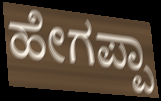
ಹೇಗಪ್ಪಾ